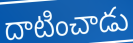
దాటించాడు